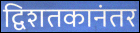
द्विशतकानंतर